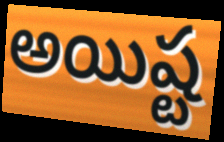
అయిష్ట